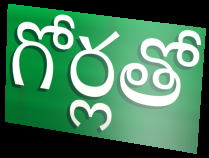
గోర్లతో